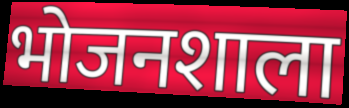
भोजनशाला